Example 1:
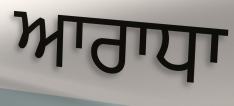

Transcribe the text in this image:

ਆਰਾਧਾ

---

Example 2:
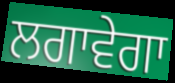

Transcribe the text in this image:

ਲਗਾਵੇਗਾ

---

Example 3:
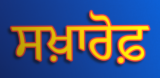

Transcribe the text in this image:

ਸਖ਼ਾਰੋਫ਼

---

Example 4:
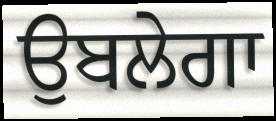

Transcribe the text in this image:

ਉਬਲੇਗਾ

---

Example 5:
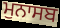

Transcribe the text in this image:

ਮੁਨਾਸਬ